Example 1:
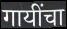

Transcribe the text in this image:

गायींचा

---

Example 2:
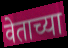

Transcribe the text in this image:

वेताच्या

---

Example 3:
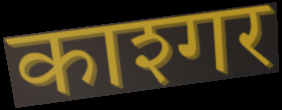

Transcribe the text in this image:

काश्गर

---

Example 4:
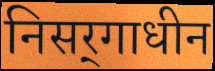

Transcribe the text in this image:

निसर्गाधीन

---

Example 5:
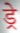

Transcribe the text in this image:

ड्रे